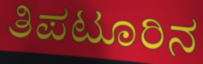
ತಿಪಟೂರಿನ